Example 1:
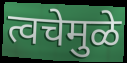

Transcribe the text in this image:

त्वचेमुळे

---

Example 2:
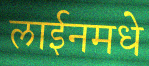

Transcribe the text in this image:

लाईनमधे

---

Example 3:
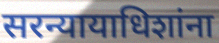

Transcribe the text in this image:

सरन्यायाधिशांना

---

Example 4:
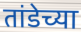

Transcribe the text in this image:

तांडेच्या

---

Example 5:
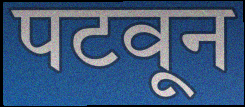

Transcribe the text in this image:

पटवून